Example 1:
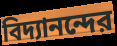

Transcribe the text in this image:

বিদ্যানন্দের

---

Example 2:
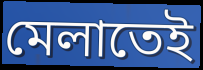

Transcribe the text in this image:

মেলাতেই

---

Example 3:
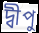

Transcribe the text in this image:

দ্বীপু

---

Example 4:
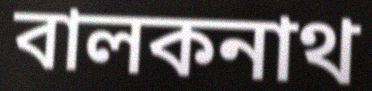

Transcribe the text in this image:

বালকনাথ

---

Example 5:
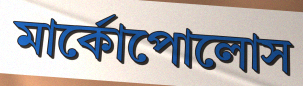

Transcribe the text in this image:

মার্কোপোলোস